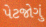
પેટજોગું